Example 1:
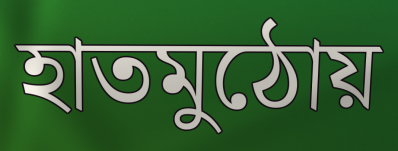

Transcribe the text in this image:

হাতমুঠোয়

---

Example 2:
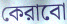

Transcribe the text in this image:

কেরাবো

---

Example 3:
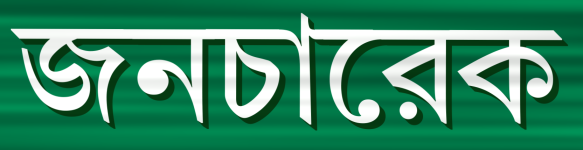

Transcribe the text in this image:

জনচারেক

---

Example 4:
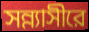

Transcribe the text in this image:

সন্ন্যাসীরে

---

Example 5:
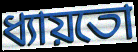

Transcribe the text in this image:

ধ্যায়তো